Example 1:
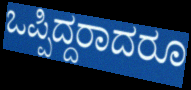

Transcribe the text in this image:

ಒಪ್ಪಿದ್ದರಾದರೂ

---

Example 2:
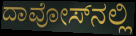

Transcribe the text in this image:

ದಾವೋಸ್‌ನಲ್ಲಿ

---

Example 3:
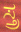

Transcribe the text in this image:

ಸ್ತ್ರ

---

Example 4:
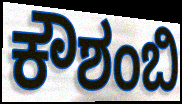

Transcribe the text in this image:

ಕೌಶಂಬಿ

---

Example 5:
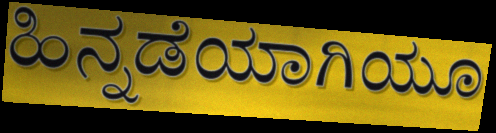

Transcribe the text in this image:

ಹಿನ್ನಡೆಯಾಗಿಯೂ